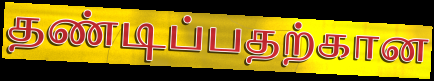
தண்டிப்பதற்கான